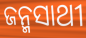
ଜନ୍ମସାଥୀ